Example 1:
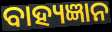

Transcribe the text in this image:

ବାହ୍ୟଜ୍ଞାନ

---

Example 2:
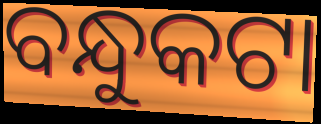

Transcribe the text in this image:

ବନ୍ଧୁକଟା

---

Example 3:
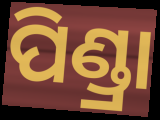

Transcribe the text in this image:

ପିଣ୍ଡ୍ରା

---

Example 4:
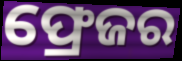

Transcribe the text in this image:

ଫ୍ରେଜର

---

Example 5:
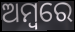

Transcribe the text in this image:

ଅମ୍ବରେ